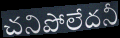
చనిపోలేదనీ